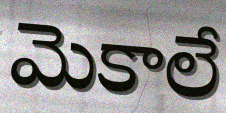
మెకాలే